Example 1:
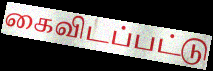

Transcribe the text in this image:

கைவிடப்பட்டு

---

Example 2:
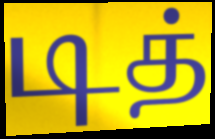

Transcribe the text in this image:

டித்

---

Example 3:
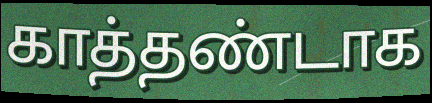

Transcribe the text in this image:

காத்தண்டாக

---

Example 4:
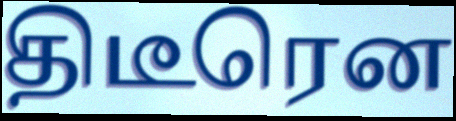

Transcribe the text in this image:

திடீரென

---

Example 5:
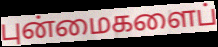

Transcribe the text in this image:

புன்மைகளைப்